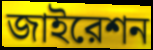
জাইরেশন